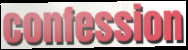
confession